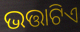
ଭତ୍ତାଟିଏ